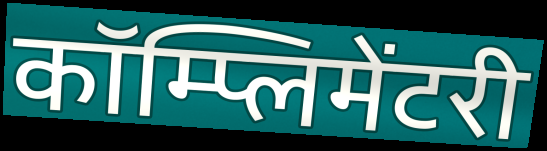
कॉम्प्लिमेंटरी